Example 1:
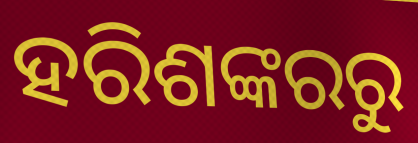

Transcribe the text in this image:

ହରିଶଙ୍କରରୁ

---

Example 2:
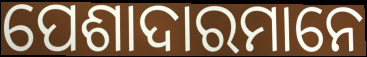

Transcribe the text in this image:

ପେଶାଦାରମାନେ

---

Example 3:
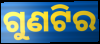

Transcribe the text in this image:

ଗୁଣଟିର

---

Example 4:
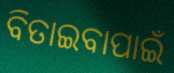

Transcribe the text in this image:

ବିତାଇବାପାଇଁ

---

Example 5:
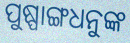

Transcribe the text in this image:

ପୁଷ୍ପାଙ୍ଗଧନୁଙ୍କ